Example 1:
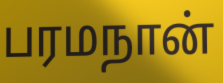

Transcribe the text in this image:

பரமநான்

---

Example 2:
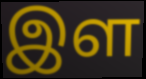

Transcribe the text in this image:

இள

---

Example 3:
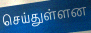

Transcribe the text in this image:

செய்துள்ளன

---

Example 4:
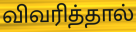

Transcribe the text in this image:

விவரித்தால்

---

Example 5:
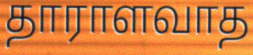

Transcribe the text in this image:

தாராளவாத